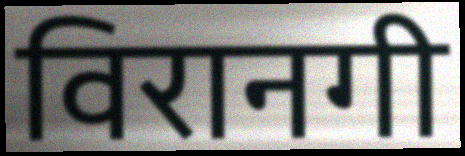
विरानगी